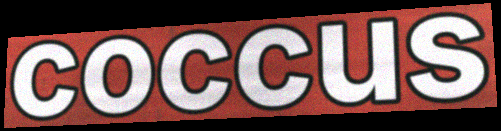
coccus